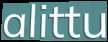
alittu